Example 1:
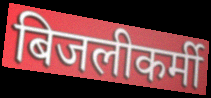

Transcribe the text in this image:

बिजलीकर्मी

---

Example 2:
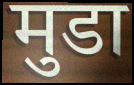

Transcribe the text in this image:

मुडा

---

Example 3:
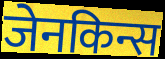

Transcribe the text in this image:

जेनकिन्स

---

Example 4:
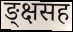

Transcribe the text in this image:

ङ्क्षसह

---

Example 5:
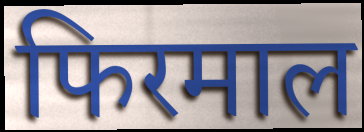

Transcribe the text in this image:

फिरमाल